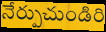
నేర్పుచుండిరి